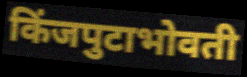
किंजपुटाभोवती